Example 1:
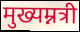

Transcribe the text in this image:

मुख्यम्नत्री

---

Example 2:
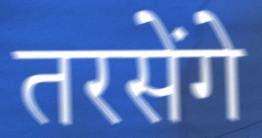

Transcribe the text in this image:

तरसेंगे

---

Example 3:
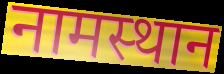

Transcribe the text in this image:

नामस्थान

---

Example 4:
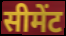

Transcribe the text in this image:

सीमेंट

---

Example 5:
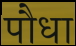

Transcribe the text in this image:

पौधा